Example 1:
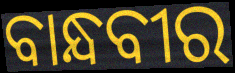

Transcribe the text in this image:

ବାନ୍ଧବୀର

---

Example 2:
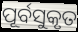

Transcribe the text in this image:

ପୂର୍ବସୁକୃତ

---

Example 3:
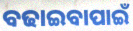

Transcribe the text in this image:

ବଢାଇବାପାଇଁ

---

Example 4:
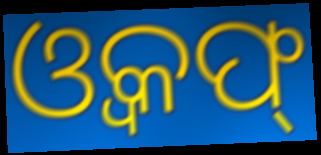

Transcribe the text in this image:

ଓ୍ୱକଫ୍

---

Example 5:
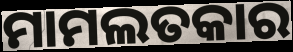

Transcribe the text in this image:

ମାମଲତକାର